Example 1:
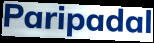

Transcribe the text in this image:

Paripadal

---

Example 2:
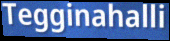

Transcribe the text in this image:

Tegginahalli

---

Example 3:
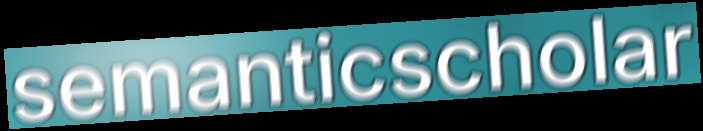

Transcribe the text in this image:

semanticscholar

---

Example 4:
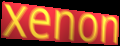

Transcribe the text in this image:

xenon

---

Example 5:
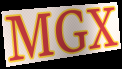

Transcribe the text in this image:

MGX